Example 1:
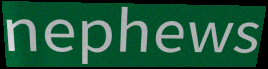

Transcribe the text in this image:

nephews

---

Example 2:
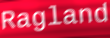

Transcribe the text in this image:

Ragland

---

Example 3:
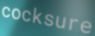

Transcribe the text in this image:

cocksure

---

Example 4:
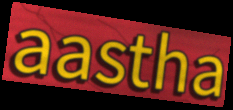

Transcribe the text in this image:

aastha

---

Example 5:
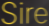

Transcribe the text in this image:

Sire